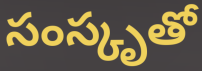
సంస్కృతో